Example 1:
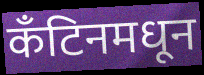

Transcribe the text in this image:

कँटिनमधून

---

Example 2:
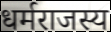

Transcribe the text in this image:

धर्मराजस्य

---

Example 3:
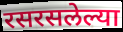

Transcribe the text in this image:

रसरसलेल्या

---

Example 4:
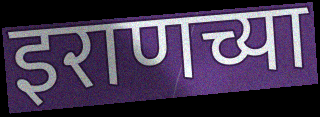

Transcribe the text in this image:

इराणच्या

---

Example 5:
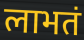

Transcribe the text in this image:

लाभतं